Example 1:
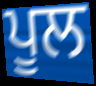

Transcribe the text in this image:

ਪੂਲ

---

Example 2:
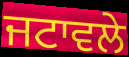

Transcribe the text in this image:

ਜਟਾਵਲੇ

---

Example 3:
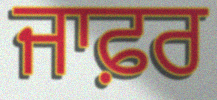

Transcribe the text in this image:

ਜਾਫ਼ਰ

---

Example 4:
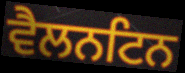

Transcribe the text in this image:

ਵੈਲਨਟਿਨ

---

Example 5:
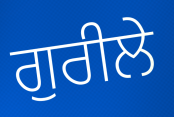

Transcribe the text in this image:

ਗੁਰੀਲੇ